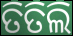
ତିତିଲି